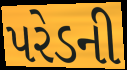
પરેડની